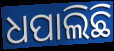
ଧପାଲିଛି